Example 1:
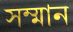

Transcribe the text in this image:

সম্মান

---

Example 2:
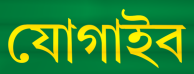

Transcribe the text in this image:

যোগাইব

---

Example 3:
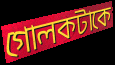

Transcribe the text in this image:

গোলকটাকে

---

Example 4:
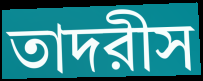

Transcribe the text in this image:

তাদরীস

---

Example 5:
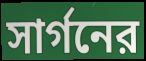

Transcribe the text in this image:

সার্গনের